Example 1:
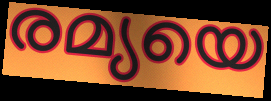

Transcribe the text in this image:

രമ്യയെ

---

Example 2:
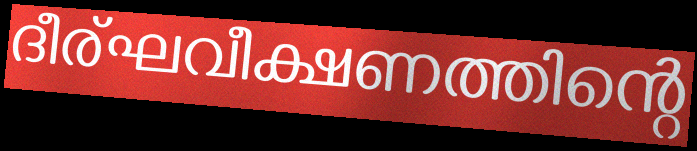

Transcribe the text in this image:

ദീര്ഘവീക്ഷണത്തിന്റെ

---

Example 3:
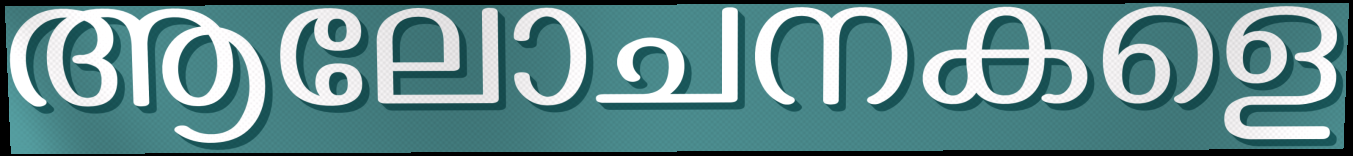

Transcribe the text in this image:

ആലോചനകളെ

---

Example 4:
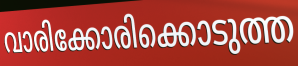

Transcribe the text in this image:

വാരിക്കോരിക്കൊടുത്ത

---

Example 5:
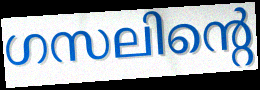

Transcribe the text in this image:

ഗസലിന്റെ